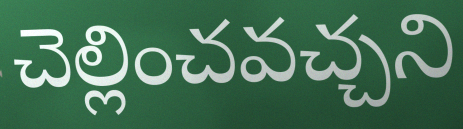
చెల్లించవచ్చని